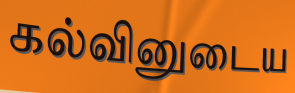
கல்வினுடைய